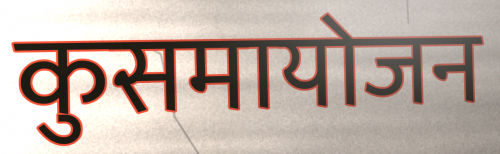
कुसमायोजन